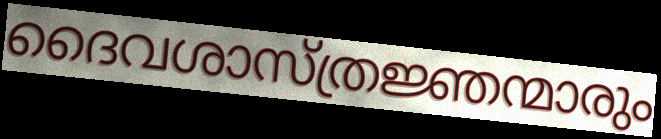
ദൈവശാസ്ത്രജ്ഞന്മാരും